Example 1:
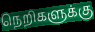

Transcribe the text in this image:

நெறிகளுக்கு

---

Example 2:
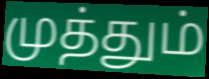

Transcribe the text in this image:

முத்தும்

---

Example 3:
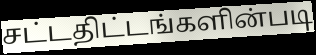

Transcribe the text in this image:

சட்டதிட்டங்களின்படி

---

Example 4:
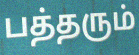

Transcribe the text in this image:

பத்தரும்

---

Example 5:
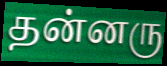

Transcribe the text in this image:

தன்னரு